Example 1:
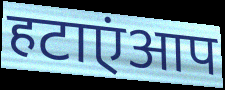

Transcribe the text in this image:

हटाएंआप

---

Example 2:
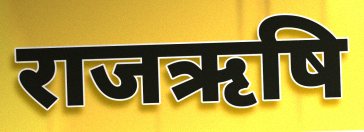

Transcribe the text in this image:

राजऋषि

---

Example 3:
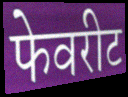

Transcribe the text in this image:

फेवरीट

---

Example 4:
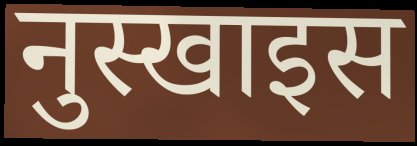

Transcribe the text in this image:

नुस्खाइस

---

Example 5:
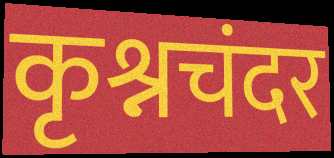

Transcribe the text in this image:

कृश्नचंदर